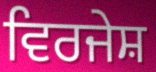
ਵਿਰਜੇਸ਼